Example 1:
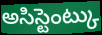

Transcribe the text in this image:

అసిస్టెంట్కు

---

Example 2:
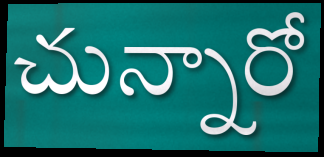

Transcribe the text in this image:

చున్నారో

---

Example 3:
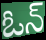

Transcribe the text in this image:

ఓన్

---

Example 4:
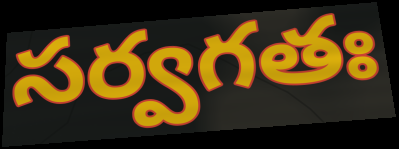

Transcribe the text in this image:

సర్వగతః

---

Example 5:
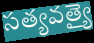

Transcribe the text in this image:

సత్యవత్యై